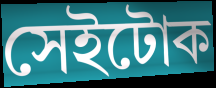
সেইটোক